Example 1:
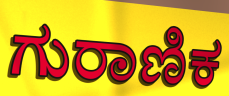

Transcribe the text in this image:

ಗುರಾಣಿಕ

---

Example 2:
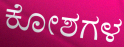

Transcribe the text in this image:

ಕೋಶಗಳ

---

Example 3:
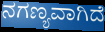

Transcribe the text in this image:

ನಗಣ್ಯವಾಗಿದೆ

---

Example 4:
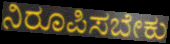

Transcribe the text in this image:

ನಿರೂಪಿಸಬೇಕು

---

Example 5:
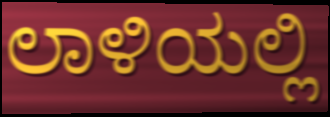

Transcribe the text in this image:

ಲಾಳಿಯಲ್ಲಿ